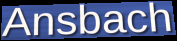
Ansbach